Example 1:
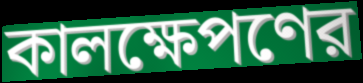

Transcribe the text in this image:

কালক্ষেপণের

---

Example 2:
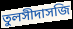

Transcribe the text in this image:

তুলসীদাসজি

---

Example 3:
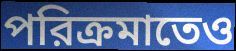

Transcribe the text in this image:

পরিক্রমাতেও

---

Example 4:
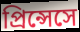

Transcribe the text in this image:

প্রিন্সেসে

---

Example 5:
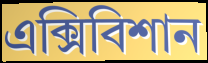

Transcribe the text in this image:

এক্সিবিশান